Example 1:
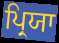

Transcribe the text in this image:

ਪ੍ਰਿਯਾ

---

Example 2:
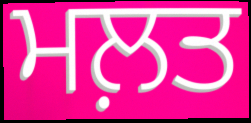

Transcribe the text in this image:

ਮਲ਼ਤ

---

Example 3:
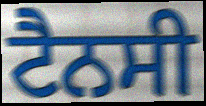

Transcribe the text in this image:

ਟੈਨਸੀ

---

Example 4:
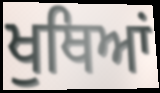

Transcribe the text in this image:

ਖੁਥਿਆਂ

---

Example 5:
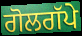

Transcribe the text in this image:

ਗੋਲਗੱਪੇ